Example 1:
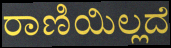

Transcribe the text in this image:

ರಾಣಿಯಿಲ್ಲದೆ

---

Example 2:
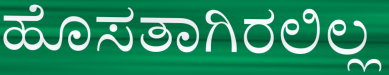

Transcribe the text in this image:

ಹೊಸತಾಗಿರಲಿಲ್ಲ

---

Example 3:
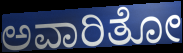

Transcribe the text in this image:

ಅವಾರಿತೋ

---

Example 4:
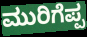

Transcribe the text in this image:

ಮುರಿಗೆಪ್ಪ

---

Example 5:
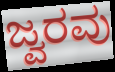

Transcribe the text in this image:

ಜ್ವರವು